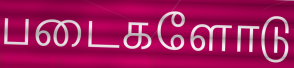
படைகளோடு